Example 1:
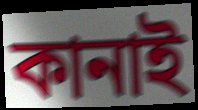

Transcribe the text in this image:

কানাই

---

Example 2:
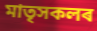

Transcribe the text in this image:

মাতৃসকলৰ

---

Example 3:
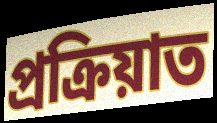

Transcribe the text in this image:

প্ৰক্ৰিয়াত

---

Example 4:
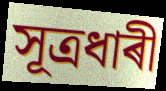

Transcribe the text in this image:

সূত্ৰধাৰী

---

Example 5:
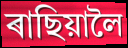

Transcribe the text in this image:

ৰাছিয়ালৈ